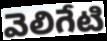
వెలిగేటి